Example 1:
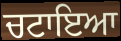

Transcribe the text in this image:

ਚਟਾਇਆ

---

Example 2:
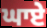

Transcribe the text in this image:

ਘਾਏ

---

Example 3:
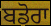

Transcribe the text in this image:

ਬਡੋਰਾ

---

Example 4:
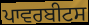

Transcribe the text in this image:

ਪਾਵਰਬੀਟਸ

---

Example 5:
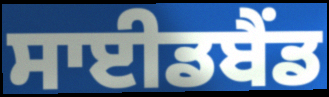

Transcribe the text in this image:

ਸਾਈਡਬੈਂਡ